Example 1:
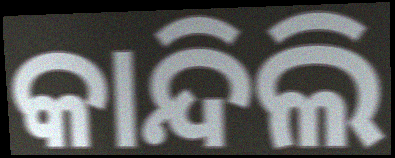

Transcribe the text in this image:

କାନ୍ଦିଲି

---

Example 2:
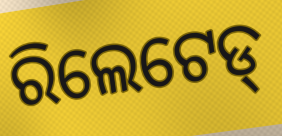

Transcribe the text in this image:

ରିଲେଟେଡ୍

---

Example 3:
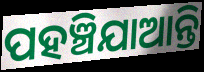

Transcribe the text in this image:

ପହଞ୍ଚିଯାଆନ୍ତି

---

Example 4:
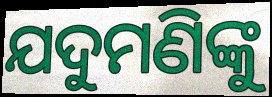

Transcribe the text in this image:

ଯଦୁମଣିଙ୍କୁ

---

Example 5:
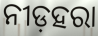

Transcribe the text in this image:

ନୀଡ଼ହରା